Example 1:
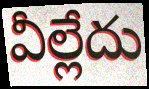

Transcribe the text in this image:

వీల్లేదు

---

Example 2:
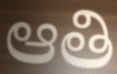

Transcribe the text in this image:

ఆతి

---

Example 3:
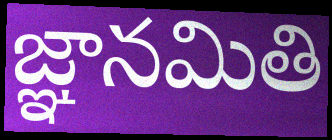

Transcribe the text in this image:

జ్ఞానమితి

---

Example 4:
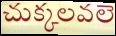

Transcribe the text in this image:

చుక్కలవలె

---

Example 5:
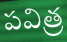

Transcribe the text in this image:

పవిత్ర